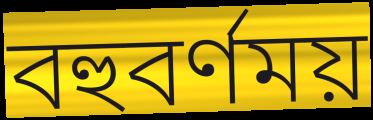
বহুবর্ণময়